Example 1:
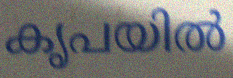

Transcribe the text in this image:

കൃപയിൽ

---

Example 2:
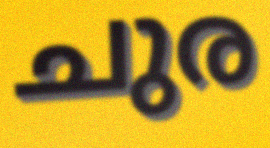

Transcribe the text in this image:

ചുര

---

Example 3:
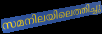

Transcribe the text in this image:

സമനിലയിലെത്തിച്ചു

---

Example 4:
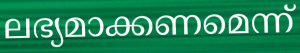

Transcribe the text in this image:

ലഭ്യമാക്കണമെന്ന്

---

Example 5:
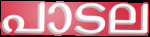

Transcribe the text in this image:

പാടല